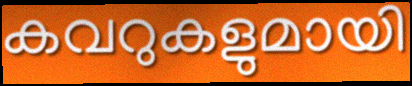
കവറുകളുമായി